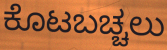
ಕೊಟಬಚ್ಚಲು